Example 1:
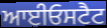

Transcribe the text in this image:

ਆਈਓਸਟੈਟ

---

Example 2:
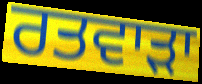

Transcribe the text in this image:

ਰਤਵਾੜਾ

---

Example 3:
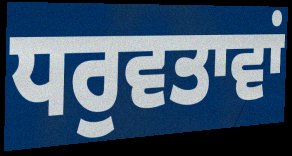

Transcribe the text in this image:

ਧਰੁਵਤਾਵਾਂ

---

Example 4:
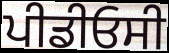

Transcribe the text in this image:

ਪੀਡੀਓਸੀ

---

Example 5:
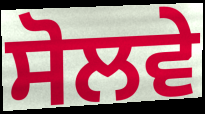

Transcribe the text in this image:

ਸੋਲਵੇ